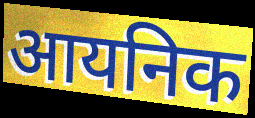
आयनिक